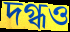
দগ্ধও